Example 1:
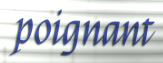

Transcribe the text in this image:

poignant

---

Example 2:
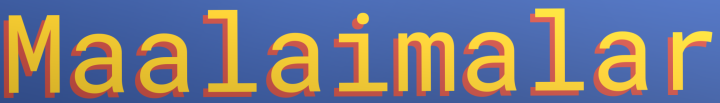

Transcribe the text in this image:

Maalaimalar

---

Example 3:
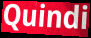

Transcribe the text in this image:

Quindi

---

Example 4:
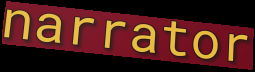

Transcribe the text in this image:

narrator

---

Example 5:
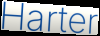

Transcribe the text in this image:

Harter